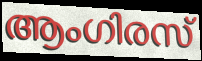
ആംഗിരസ്